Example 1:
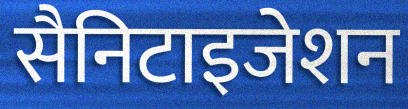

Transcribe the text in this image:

सैनिटाइजेशन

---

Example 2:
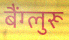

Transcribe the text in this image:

बैंग्लुरू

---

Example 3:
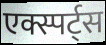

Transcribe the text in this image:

एक्स्पर्ट्स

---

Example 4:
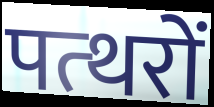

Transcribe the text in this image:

पत्‍थरों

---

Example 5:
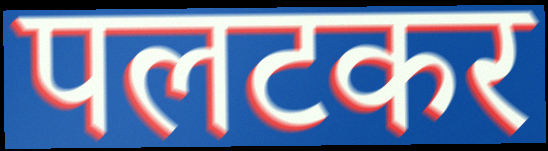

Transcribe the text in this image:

पलटकर